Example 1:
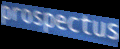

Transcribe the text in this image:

prospectus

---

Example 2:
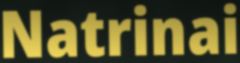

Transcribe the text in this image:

Natrinai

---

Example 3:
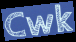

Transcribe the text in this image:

Cwk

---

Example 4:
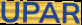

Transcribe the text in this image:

UPAR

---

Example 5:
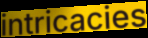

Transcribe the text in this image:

intricacies